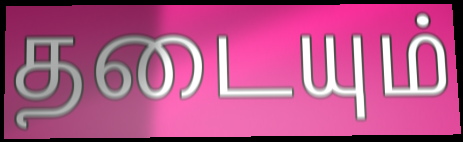
தடையும்